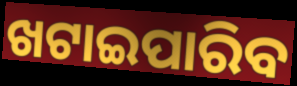
ଖଟାଇପାରିବ